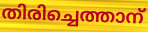
തിരിച്ചെത്താന്